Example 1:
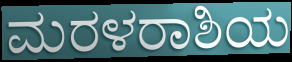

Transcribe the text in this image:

ಮರಳರಾಶಿಯ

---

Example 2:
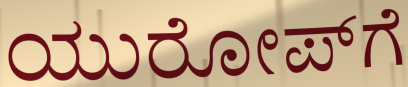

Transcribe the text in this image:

ಯುರೋಪ್‌ಗೆ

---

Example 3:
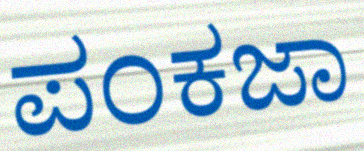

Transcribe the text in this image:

ಪಂಕಜಾ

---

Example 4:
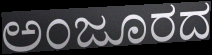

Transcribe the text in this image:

ಅಂಜೂರದ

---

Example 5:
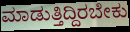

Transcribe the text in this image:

ಮಾಡುತ್ತಿದ್ದಿರಬೇಕು